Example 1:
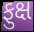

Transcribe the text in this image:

ફુક્ષ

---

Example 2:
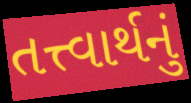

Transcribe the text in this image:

તત્ત્વાર્થનું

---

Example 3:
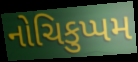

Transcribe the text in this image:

નોચિકુપ્પમ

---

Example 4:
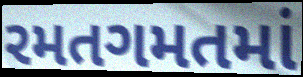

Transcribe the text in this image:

રમતગમતમાં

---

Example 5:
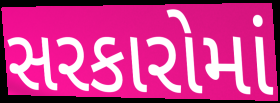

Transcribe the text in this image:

સરકારોમાં